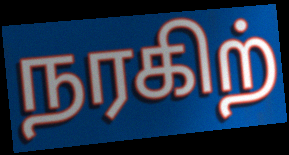
நரகிற்